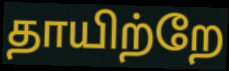
தாயிற்றே